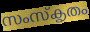
സംസ്‌കൃതം